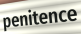
penitence